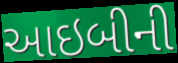
આઇબીની